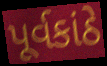
પૂર્વકાંઠે